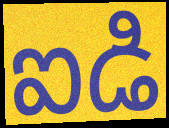
ఐడి